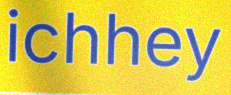
ichhey